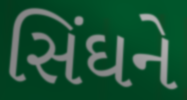
સિંઘને